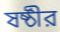
ষষ্ঠীর